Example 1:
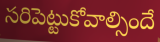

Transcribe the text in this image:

సరిపెట్టుకోవాల్సిందే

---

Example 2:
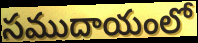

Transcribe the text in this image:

సముదాయంలో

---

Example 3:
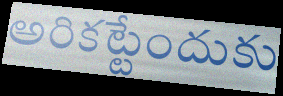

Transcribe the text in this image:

అరికట్టేందుకు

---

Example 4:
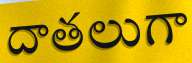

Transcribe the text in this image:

దాతలుగా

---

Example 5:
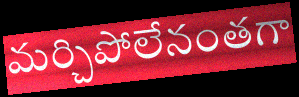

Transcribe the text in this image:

మర్చిపోలేనంతగా